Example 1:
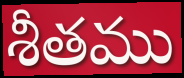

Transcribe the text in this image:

శీతము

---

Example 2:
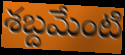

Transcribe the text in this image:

శబ్దమేంటి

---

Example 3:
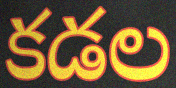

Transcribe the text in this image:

కడల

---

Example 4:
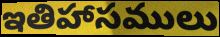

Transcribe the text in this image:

ఇతిహాసములు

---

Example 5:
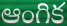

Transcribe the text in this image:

ఆంగిక